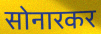
सोनारकर